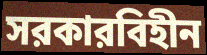
সরকারবিহীন